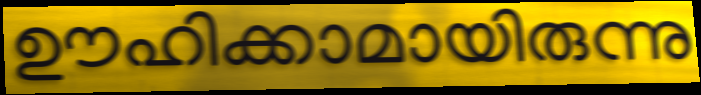
ഊഹിക്കാമായിരുന്നു